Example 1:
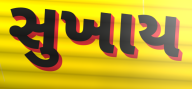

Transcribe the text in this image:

સુખાય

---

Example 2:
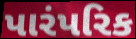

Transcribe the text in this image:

પારંપરિક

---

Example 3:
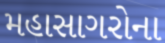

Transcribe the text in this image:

મહાસાગરોના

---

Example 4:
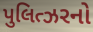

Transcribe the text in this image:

પુલિત્ઝરનો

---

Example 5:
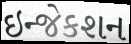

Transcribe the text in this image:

ઇન્જેકશન